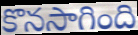
కొనసాగింది